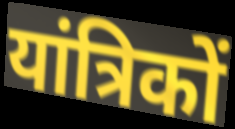
यांत्रिकों